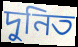
দুনিত